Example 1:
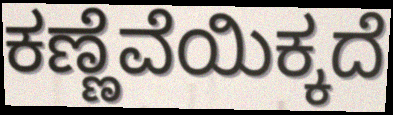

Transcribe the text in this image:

ಕಣ್ಣೆವೆಯಿಕ್ಕದೆ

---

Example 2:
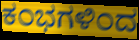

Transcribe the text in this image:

ಕಂಭಗಳಿಂದ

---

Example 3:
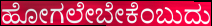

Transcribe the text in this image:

ಹೋಗಲೇಬೇಕೆಂಬುದು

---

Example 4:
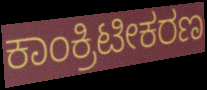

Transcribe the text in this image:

ಕಾಂಕ್ರಿಟೀಕರಣ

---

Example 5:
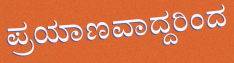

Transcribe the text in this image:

ಪ್ರಯಾಣವಾದ್ದರಿಂದ